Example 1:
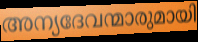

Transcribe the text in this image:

അന്യദേവന്മാരുമായി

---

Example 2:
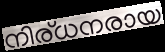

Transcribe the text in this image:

നിര്ധനരായ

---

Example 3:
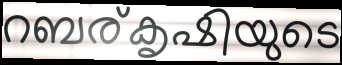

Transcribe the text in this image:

റബര്കൃഷിയുടെ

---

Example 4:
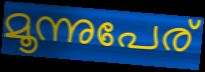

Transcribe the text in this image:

മൂന്നുപേര്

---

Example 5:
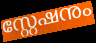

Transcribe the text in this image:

സ്റ്റേഷനും